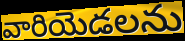
వారియెడలను